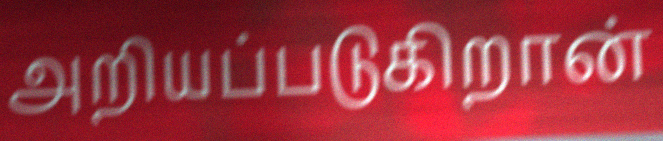
அறியப்படுகிறான்